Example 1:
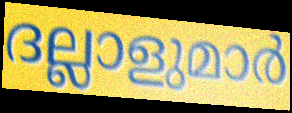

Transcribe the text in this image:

ദല്ലാളുമാർ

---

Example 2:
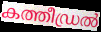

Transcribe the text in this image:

കത്തീഡ്രൽ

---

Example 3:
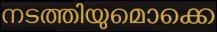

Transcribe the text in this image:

നടത്തിയുമൊക്കെ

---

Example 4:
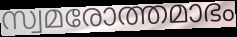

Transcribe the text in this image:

സ്വമരോത്തമാഭം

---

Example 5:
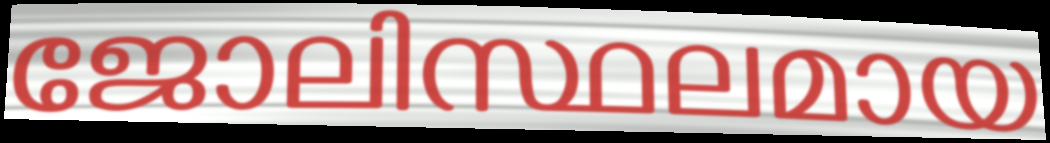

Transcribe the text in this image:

ജോലിസ്ഥലമായ